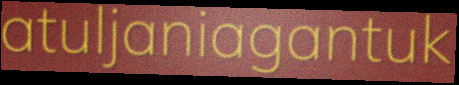
atuljaniagantuk